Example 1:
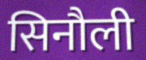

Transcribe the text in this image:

सिनौली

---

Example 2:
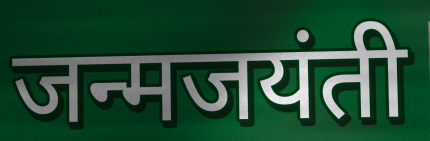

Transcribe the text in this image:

जन्मजयंती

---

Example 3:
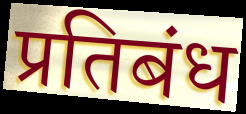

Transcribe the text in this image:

प्रतिबंध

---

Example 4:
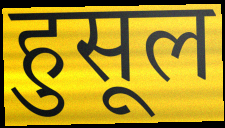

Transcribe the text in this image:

हुसूल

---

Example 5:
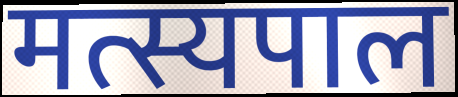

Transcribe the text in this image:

मत्स्यपाल